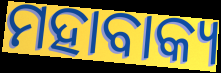
ମହାବାକ୍ୟ